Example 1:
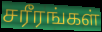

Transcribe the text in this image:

சரீரங்கள்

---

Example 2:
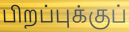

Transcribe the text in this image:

பிறப்புக்குப்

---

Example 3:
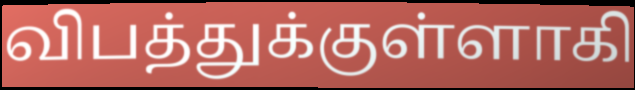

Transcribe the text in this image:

விபத்துக்குள்ளாகி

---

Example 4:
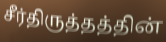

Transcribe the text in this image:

சீர்திருத்தத்தின்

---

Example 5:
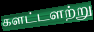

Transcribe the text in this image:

களட்டளற்று